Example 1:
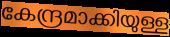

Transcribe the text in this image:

കേന്ദ്രമാക്കിയുള്ള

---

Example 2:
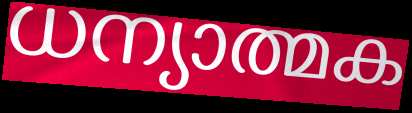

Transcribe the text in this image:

ധന്യാത്മക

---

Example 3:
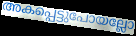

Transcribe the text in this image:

അകപ്പെട്ടുപോയല്ലോ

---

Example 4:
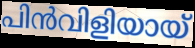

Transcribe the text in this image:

പിൻവിളിയായ്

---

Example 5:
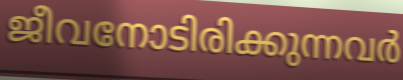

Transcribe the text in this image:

ജീവനോടിരിക്കുന്നവർ